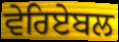
ਵੇਰਿਏਬਲ